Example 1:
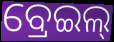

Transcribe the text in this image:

ବ୍ରେଇଲ୍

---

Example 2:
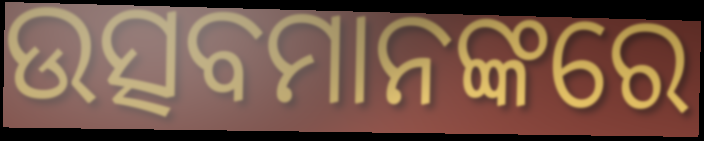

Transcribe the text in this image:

ଉତ୍ସବମାନଙ୍କରେ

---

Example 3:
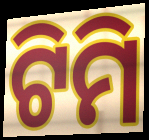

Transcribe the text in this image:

ଟିମି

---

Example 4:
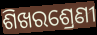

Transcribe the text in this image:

ଶିଖରଶ୍ରେଣୀ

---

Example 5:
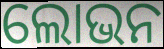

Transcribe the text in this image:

ଲୋଭନ